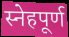
स्नेहपूर्ण